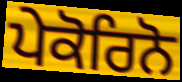
ਪੇਕੋਰਿਨੋ